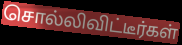
சொல்லிவிட்டீர்கள்